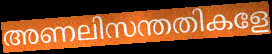
അണലിസന്തതികളേ